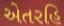
એતરહિ